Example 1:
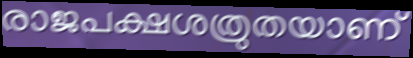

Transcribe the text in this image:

രാജപക്ഷശത്രുതയാണ്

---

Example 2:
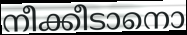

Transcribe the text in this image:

നീക്കീടാനൊ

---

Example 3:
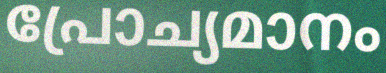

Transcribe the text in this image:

പ്രോച്യമാനം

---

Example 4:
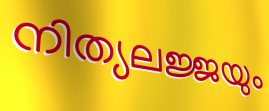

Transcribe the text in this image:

നിത്യലജ്ജയും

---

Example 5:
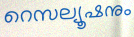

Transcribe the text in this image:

റെസല്യൂഷനും